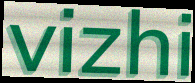
vizhi